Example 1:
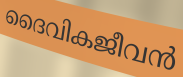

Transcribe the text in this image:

ദൈവികജീവൻ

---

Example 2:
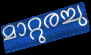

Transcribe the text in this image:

മാറ്റുരച്ചു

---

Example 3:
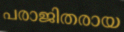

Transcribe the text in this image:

പരാജിതരായ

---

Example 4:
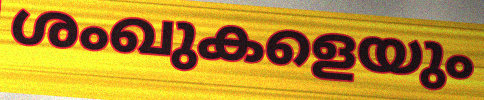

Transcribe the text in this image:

ശംഖുകളെയും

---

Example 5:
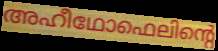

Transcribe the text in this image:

അഹീഥോഫെലിന്റെ